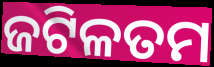
ଜଟିଳତମ